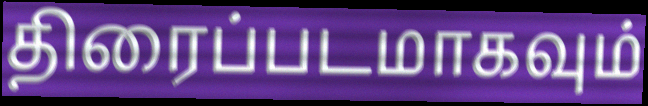
திரைப்படமாகவும்